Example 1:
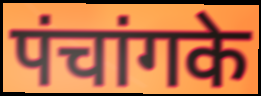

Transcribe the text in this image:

पंचांगके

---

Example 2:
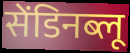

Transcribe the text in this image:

सेंडिनब्लू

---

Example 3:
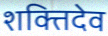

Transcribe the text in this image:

शक्तिदेव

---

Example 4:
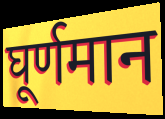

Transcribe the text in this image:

घूर्णमान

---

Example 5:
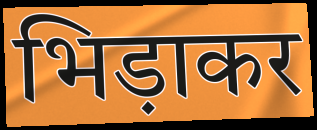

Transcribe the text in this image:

भिड़ाकर